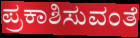
ಪ್ರಕಾಶಿಸುವಂತೆ